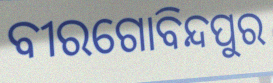
ବୀରଗୋବିନ୍ଦପୁର